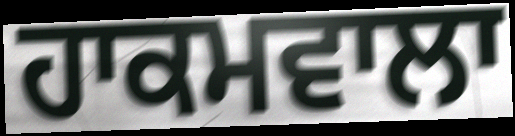
ਹਾਕਮਵਾਲਾ